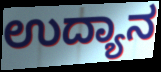
ಉದ್ಯಾನ